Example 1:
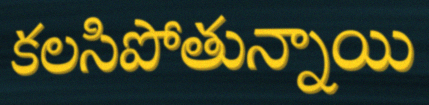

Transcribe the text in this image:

కలసిపోతున్నాయి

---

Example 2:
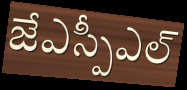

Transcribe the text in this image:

జేఎస్పీఎల్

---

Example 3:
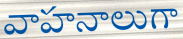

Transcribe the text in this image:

వాహనాలుగా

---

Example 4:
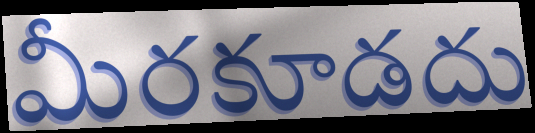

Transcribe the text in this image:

మీరకూడదు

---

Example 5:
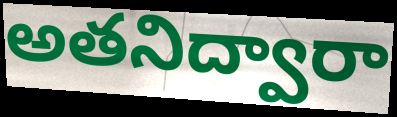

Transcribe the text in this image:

అతనిద్వారా